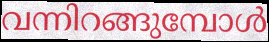
വന്നിറങ്ങുമ്പോൾ